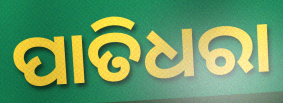
ପାତିଧରା